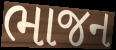
ભાજન